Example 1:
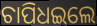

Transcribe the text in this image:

ଚାପିଧଇଲେ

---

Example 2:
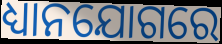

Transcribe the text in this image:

ଧ୍ୟାନଯୋଗରେ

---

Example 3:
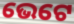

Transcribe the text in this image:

ଭେଟେ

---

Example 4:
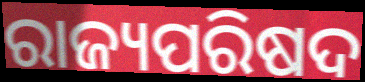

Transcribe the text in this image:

ରାଜ୍ୟପରିଷଦ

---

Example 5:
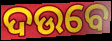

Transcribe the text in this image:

ଦଉବେ